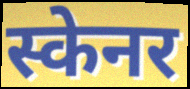
स्केनर